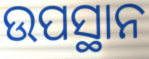
ଉପସ୍ଥାନ